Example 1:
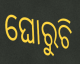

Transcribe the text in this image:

ଘୋରୁଚି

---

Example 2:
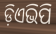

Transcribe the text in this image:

ଡ଼ିଏଭିପି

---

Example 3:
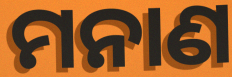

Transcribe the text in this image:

ମନାଣ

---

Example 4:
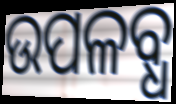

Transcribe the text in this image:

ଉପଳବ୍ଧ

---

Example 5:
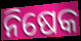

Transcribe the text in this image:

ନିଷେକ